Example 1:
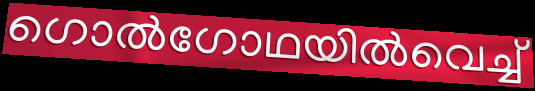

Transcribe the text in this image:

ഗൊൽഗോഥയിൽവെച്ച്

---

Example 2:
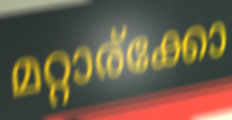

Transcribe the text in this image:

മറ്റാര്ക്കോ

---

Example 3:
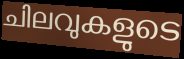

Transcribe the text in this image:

ചിലവുകളുടെ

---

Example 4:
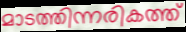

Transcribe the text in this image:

മാടത്തിന്നരികത്ത്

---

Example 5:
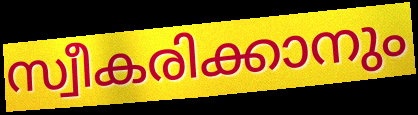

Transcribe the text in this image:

സ്വീകരിക്കാനും